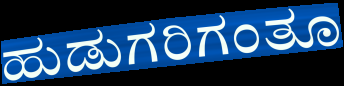
ಹುಡುಗರಿಗಂತೂ